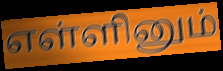
எள்ளினும்